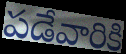
పడేవారికి